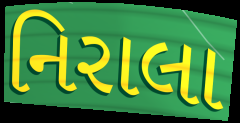
નિરાલા